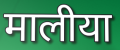
मालीया